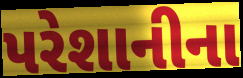
પરેશાનીના